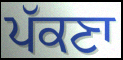
ਪੱਕਣਾ